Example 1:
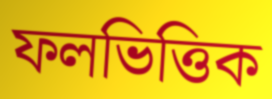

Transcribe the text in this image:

ফলভিত্তিক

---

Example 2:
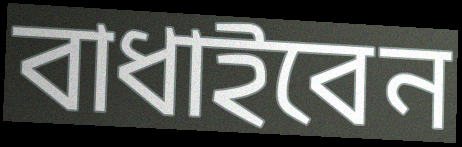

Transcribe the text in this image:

বাধাইবেন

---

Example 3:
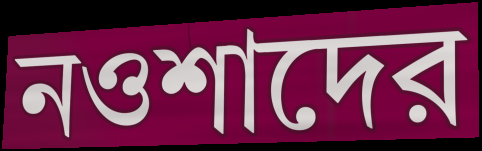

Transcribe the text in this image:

নওশাদের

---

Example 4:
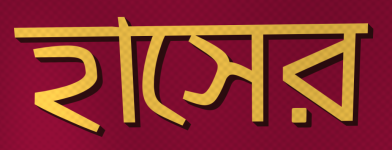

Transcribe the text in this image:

হাসের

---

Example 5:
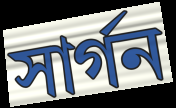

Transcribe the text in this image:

সার্গন